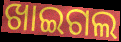
ଖାଇଗଲ